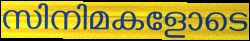
സിനിമകളോടെ